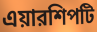
এয়ারশিপটি